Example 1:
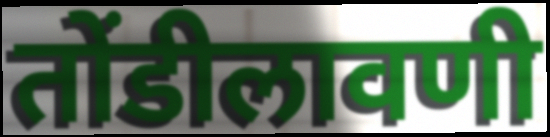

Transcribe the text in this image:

तोंडीलावणी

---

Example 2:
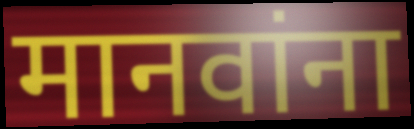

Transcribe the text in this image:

मानवांना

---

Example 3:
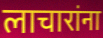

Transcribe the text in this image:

लाचारांना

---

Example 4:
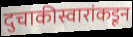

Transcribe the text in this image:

दुचाकीस्वारांकडून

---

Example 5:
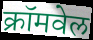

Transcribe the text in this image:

क्रॉमवेल